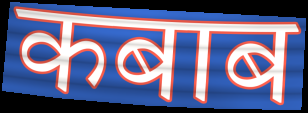
कबाब